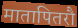
मातापितरौ